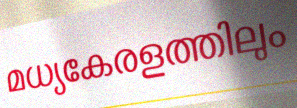
മധ്യകേരളത്തിലും